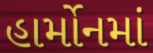
હાર્મોનમાં